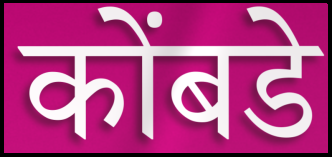
कोंबडे